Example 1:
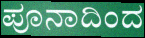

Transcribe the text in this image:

ಪೂನಾದಿಂದ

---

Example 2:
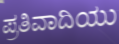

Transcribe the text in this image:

ಪ್ರತಿವಾದಿಯು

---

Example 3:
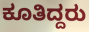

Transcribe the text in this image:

ಕೂತಿದ್ದರು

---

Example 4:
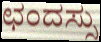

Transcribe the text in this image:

ಛಂದಸ್ಸು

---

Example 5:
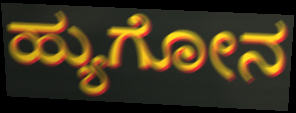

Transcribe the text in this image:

ಹ್ಯುಗೋನ